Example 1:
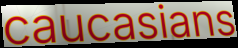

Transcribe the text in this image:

caucasians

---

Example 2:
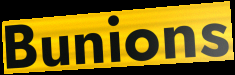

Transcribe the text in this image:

Bunions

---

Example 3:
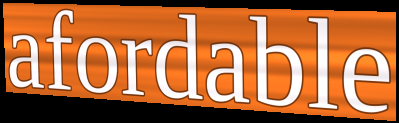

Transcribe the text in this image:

afordable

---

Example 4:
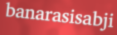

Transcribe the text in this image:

banarasisabji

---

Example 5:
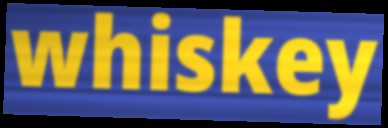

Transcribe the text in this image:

whiskey